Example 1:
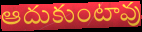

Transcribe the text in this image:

ఆదుకుంటావు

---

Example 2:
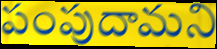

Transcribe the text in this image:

పంపుదామని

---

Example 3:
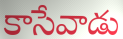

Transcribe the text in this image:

కాసేవాడు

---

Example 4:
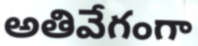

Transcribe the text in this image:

అతివేగంగా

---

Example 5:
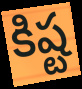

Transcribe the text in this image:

కిష్ట